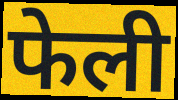
फेली